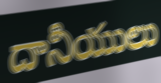
దానీయులు